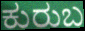
ಕುರುಬ